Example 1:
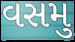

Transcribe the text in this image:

વસમુ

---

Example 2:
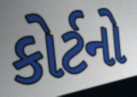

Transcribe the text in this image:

કોર્ટનો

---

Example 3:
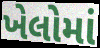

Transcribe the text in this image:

ખેલોમાં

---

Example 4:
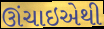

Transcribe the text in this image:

ઊંચાઇએથી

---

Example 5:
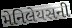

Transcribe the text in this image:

મેનિલેયસની